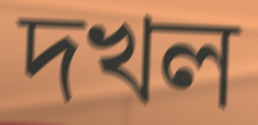
দখল